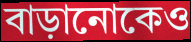
বাড়ানোকেও